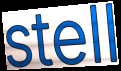
stell